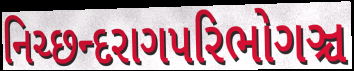
નિચ્છન્દરાગપરિભોગઞ્ચ